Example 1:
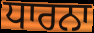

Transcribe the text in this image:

ਧਾਰਨਾ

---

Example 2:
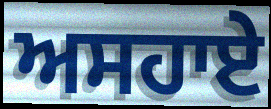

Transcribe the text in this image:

ਅਸਹਾਏ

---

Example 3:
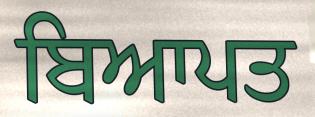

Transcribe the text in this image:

ਬਿਆਪਤ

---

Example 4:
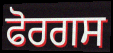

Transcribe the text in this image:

ਫੋਰਗਸ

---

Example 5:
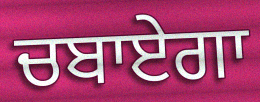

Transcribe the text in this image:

ਚਬਾਏਗਾ